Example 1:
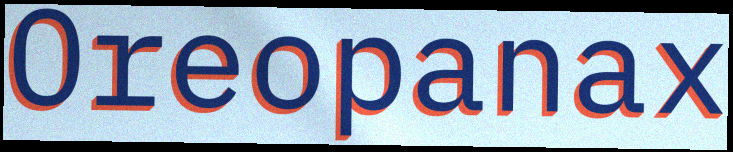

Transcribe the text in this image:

Oreopanax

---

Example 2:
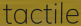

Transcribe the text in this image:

tactile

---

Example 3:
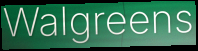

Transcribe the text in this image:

Walgreens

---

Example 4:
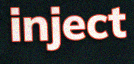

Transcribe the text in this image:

inject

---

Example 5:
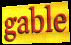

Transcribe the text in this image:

gable